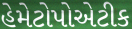
હેમેટોપોએટીક